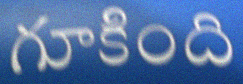
గూకింది